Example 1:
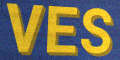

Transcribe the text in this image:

VES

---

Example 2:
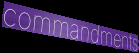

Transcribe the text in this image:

commandments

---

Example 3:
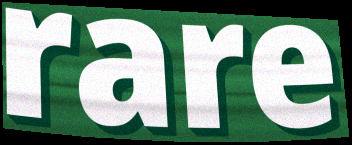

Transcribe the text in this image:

rare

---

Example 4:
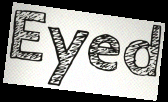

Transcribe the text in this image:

Eyed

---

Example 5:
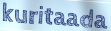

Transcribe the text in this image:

kuritaada